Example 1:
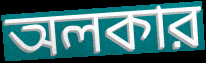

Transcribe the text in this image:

অলকার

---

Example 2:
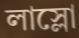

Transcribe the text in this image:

লাস্লো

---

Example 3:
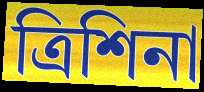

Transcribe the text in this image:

ত্রিশিনা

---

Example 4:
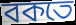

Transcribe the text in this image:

বকতে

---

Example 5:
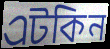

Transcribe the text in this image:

এটকিন